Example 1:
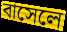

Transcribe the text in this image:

বাসেলে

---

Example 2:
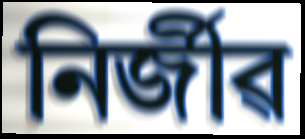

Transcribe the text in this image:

নিৰ্জীৱ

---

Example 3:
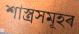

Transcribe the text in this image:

শাস্ত্ৰসমূহৰ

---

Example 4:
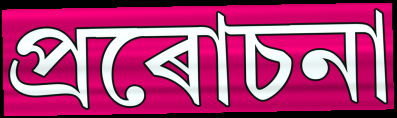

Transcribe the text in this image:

প্ৰৰোচনা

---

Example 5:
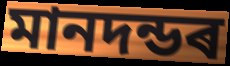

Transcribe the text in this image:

মানদন্ডৰ